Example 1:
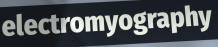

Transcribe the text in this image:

electromyography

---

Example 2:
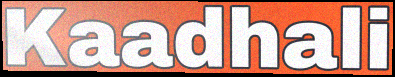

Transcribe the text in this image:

Kaadhali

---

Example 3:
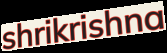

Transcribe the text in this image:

shrikrishna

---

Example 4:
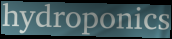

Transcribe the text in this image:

hydroponics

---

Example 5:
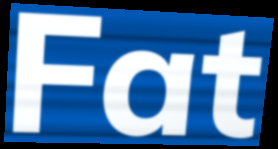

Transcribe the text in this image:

Fat